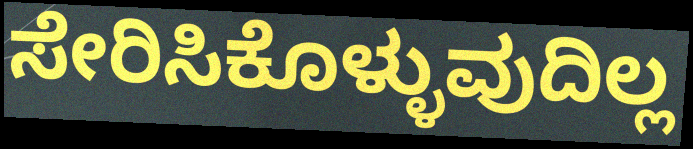
ಸೇರಿಸಿಕೊಳ್ಳುವುದಿಲ್ಲ